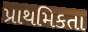
પ્રાથમિકતા